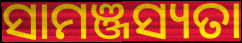
ସାମଞ୍ଜସ୍ୟତା